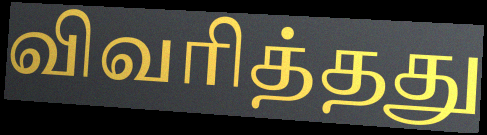
விவரித்தது